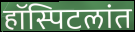
हॉस्पिटलांत